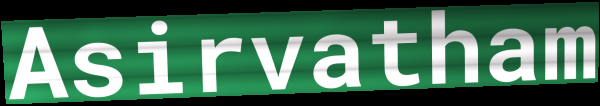
Asirvatham